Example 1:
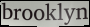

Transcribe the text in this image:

brooklyn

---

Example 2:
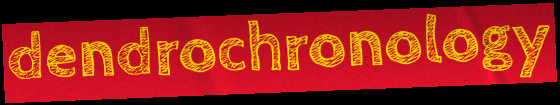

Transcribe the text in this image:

dendrochronology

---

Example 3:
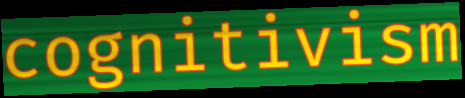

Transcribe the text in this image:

cognitivism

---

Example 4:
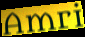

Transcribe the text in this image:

Amri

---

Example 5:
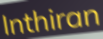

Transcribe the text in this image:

Inthiran